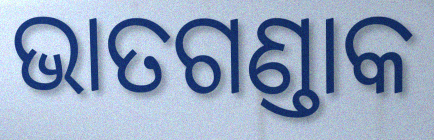
ଭାତଗଣ୍ଡାକ